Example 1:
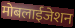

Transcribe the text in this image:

मोबलाईजेशन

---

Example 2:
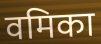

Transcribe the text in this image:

वमिका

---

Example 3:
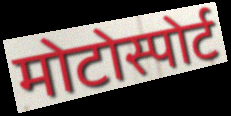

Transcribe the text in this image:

मोटोस्पोर्ट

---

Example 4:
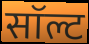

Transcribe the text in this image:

सॉल्ट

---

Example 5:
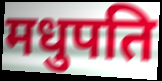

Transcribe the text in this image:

मधुपति